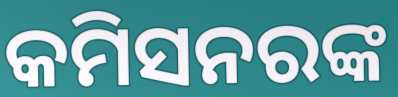
କମିସନରଙ୍କ